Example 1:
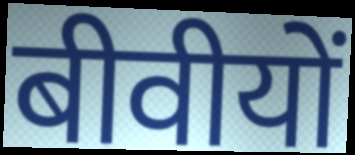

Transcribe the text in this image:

बीवीयों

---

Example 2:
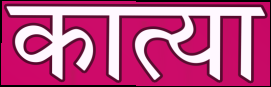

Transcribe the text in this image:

कात्या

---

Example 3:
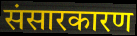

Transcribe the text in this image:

संसारकारण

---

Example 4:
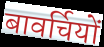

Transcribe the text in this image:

बावर्चियों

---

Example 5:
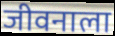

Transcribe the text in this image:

जीवनाला